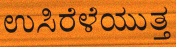
ಉಸಿರೆಳೆಯುತ್ತ